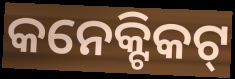
କନେକ୍ଟିକଟ୍